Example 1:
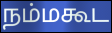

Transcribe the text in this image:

நம்மகூட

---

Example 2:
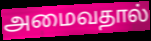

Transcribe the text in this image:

அமைவதால்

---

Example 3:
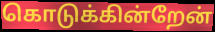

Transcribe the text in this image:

கொடுக்கின்றேன்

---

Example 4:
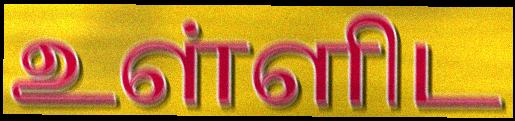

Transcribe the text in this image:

உள்ளிட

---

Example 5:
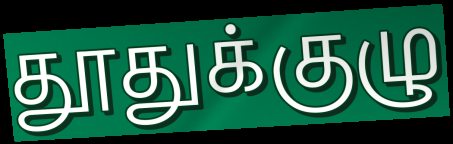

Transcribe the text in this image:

தூதுக்குழு